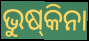
ଭୁଷ୍‌କିନା